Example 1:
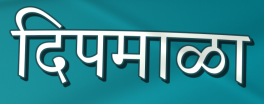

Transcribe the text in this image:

दिपमाळा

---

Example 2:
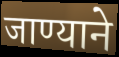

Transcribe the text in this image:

जाण्याने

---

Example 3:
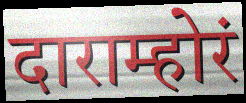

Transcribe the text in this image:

दाराम्होरं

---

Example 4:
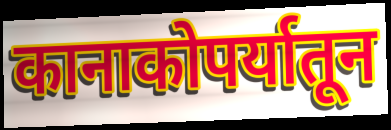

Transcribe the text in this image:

कानाकोपर्यातून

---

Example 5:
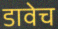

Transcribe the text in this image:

डावेच